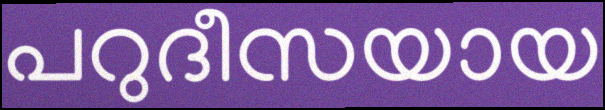
പറുദീസയായ